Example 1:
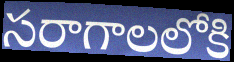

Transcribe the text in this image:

సరాగాలలోకి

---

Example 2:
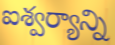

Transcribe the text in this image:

ఐశ్వర్యాన్ని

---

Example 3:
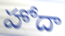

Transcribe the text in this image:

హోదా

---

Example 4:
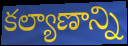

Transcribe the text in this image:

కల్యాణాన్ని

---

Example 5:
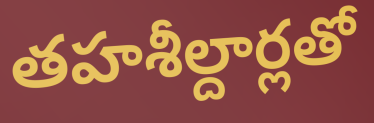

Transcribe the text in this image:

తహశీల్దార్లతో